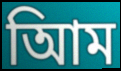
আিম